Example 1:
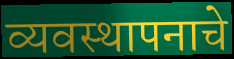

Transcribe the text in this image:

व्यवस्थापनाचे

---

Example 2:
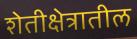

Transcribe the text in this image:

शेतीक्षेत्रातील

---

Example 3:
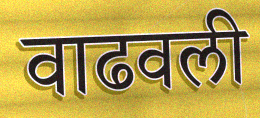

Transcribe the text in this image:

वाढवली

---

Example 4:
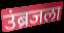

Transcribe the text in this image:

उंब्रजला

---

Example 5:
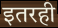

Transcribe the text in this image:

इतरही